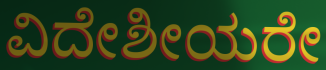
ವಿದೇಶೀಯರೇ